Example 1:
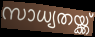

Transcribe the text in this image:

സാധ്യതയ്ക്ക്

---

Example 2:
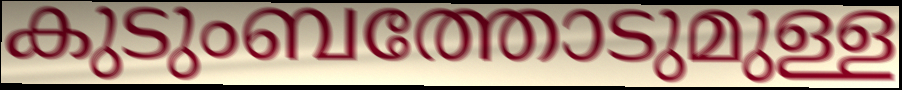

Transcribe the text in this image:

കുടുംബത്തോടുമുള്ള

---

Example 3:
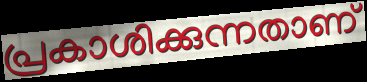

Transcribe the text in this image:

പ്രകാശിക്കുന്നതാണ്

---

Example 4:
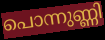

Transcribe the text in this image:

പൊന്നുണ്ണി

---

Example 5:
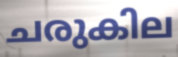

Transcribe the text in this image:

ചരുകില